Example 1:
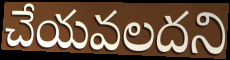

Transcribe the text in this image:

చేయవలదని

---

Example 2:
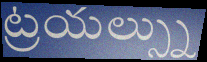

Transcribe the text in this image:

ట్రయల్స్ను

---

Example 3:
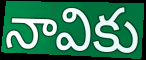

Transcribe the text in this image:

నావికు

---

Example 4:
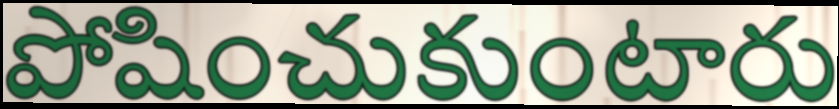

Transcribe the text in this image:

పోషించుకుంటారు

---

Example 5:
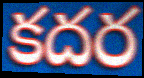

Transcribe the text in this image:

కదర